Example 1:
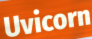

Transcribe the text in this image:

Uvicorn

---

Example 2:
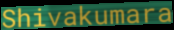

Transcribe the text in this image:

Shivakumara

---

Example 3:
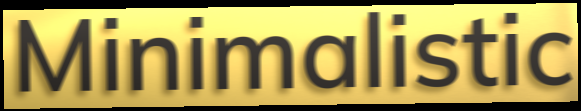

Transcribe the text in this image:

Minimalistic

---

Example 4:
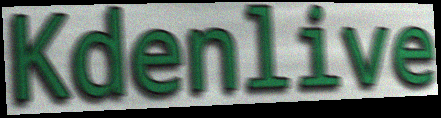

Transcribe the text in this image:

Kdenlive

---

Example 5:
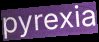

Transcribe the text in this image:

pyrexia